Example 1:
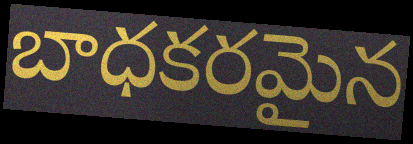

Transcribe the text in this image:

బాధకరమైన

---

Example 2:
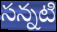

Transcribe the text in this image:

సన్నటి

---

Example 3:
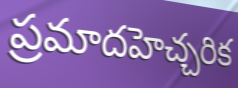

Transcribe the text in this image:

ప్రమాదహెచ్చరిక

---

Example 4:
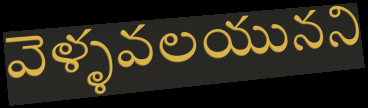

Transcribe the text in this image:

వెళ్ళవలయునని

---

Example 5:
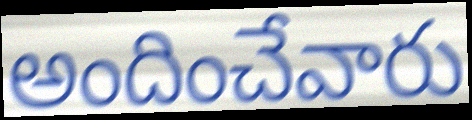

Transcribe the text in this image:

అందించేవారు